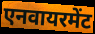
एनवायरमेंट